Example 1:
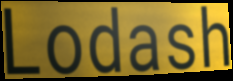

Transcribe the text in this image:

Lodash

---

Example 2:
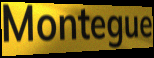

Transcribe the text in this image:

Montegue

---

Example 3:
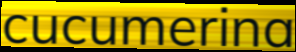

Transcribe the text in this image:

cucumerina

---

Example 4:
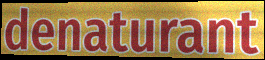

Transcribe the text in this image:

denaturant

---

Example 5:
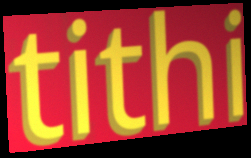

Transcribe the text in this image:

tithi